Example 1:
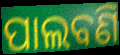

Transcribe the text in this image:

ପାଲବଣି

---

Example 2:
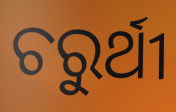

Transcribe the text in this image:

ଚରୁର୍ଥୀ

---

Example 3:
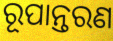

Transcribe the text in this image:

ରୂପାନ୍ତରଣ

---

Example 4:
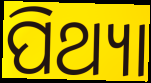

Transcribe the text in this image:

ପିଥ୍ୟା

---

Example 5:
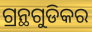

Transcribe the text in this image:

ଗ୍ରନ୍ଥଗୁଡିକର